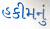
હકીમનું